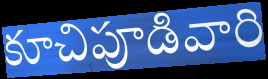
కూచిపూడివారి